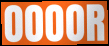
OOOOR